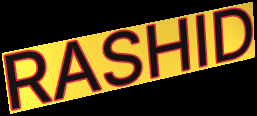
RASHID